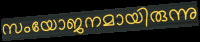
സംയോജനമായിരുന്നു